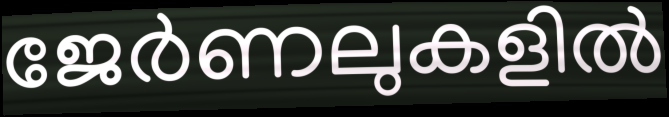
ജേർണലുകളിൽ